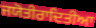
ਜਯੋਤੀਰਾਦਿਤੀਆ